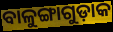
ବାଳୁଙ୍ଗାଗୁଡ଼ାକ